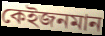
কেইজনমান